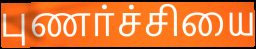
புணர்ச்சியை